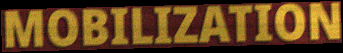
MOBILIZATION